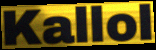
Kallol